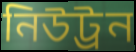
নিউট্ৰন